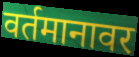
वर्तमानावर